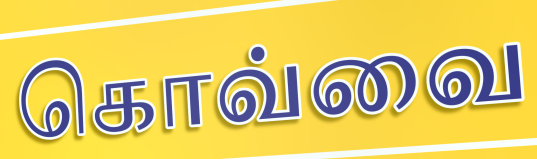
கொவ்வை